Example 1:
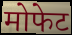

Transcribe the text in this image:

मोफेट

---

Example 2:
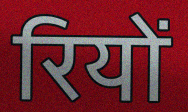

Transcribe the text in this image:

रियों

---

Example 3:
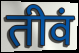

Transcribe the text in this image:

तीवं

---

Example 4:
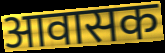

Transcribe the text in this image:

आवासक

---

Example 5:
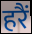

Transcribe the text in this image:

हरैं